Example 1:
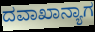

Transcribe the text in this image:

ದವಾಖಾನ್ಯಾಗ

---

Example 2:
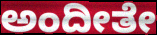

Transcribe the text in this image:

ಅಂದೀತೇ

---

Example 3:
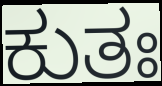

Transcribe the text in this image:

ಕುತಃ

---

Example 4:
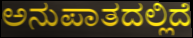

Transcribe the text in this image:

ಅನುಪಾತದಲ್ಲಿದೆ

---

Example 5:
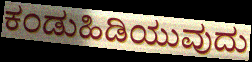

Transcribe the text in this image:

ಕಂಡುಹಿಡಿಯುವುದು